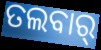
ତଲବାର୍